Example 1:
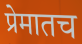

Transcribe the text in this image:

प्रेमातच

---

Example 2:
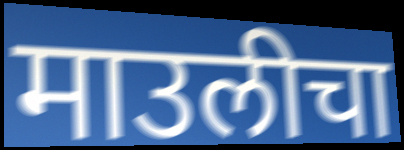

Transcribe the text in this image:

माउलीचा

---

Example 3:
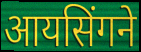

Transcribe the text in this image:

आयसिंगने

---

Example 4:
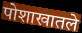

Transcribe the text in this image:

पोशाखातले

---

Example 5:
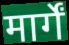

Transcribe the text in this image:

मार्गें